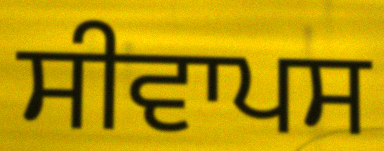
ਸੀਵਾਪਸ